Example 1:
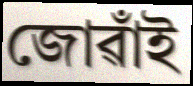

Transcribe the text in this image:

জোৱাঁই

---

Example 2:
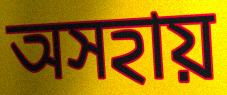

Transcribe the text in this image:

অসহায়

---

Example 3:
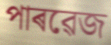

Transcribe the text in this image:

পাৰৱেজ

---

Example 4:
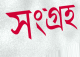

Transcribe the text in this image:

সংগ্ৰহ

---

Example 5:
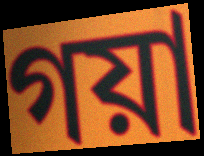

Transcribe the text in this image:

গয়া